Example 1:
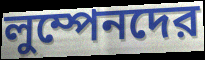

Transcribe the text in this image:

লুম্পেনদের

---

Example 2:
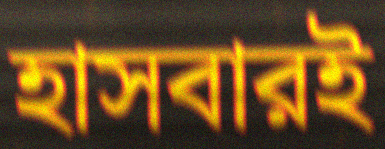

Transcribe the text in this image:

হাসবারই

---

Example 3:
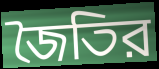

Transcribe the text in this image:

জৈতির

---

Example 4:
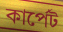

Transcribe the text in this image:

কার্পেট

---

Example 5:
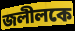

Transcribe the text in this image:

জলীলকে